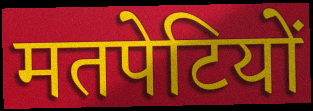
मतपेटियों